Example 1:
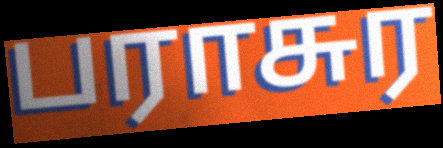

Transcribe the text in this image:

பராசுர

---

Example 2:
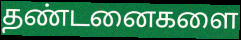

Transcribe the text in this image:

தண்டனைகளை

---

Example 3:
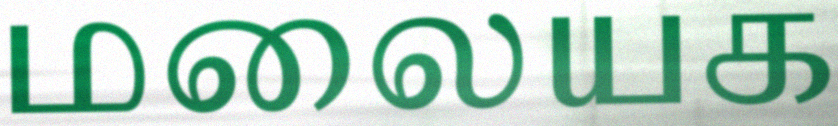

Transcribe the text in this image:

மலையக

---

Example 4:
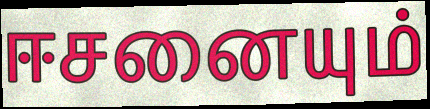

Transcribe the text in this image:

ஈசனையும்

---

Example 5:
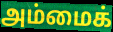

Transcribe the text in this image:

அம்மைக்